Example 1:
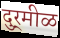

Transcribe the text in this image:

दुर्मीळ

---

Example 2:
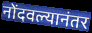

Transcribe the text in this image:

नोंदवल्यानंतर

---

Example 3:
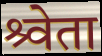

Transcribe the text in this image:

श्र्वेता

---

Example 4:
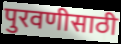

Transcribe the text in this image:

पुरवणीसाठी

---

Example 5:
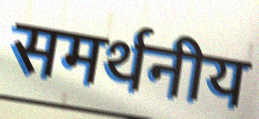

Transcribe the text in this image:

समर्थनीय